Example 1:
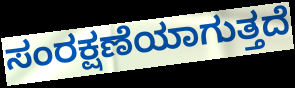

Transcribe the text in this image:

ಸಂರಕ್ಷಣೆಯಾಗುತ್ತದೆ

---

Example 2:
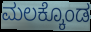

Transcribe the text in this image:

ಮಲಕ್ಕೊಂಡ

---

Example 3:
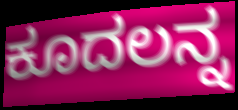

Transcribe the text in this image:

ಕೂದಲನ್ನ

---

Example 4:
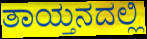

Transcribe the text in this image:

ತಾಯ್ತನದಲ್ಲಿ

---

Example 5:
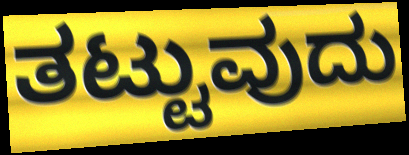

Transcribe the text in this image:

ತಟ್ಟುವುದು